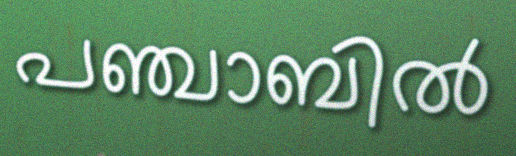
പഞ്ചാബിൽ